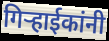
गिऱ्हाईकांनी